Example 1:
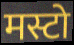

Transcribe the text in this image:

मस्टो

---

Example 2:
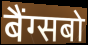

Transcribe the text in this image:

बैंग्सबो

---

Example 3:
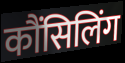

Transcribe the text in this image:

कौंसिलिंग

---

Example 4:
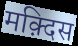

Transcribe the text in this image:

मक़्दिस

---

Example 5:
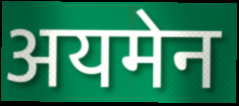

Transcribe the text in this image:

अयमेन